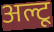
अल्टू